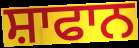
ਸ਼ਾਫਾਨ